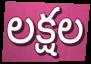
లక్షల